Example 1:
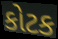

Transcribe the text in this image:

કોટક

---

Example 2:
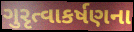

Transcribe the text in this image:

ગુરૃત્વાકર્ષણના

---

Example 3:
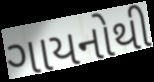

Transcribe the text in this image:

ગાયનોથી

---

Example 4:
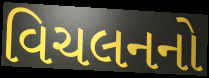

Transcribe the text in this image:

વિચલનનો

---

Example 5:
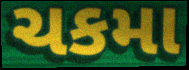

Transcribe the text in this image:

ચકમા